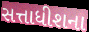
સત્તાધીશના